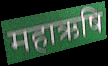
महाऋषि